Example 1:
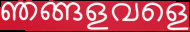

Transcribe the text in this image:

ഞങ്ങളവളെ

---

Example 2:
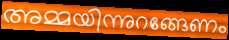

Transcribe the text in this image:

അമ്മയിന്നുറങ്ങേണം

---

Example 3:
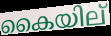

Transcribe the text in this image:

കൈയില്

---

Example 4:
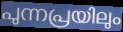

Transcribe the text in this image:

പുന്നപ്രയിലും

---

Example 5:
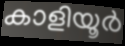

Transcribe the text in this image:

കാളിയൂർ